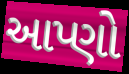
આપ્ણો